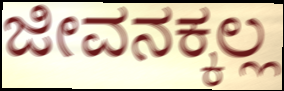
ಜೀವನಕ್ಕಲ್ಲ